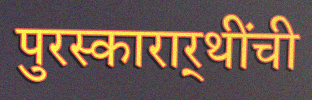
पुरस्कारार्थींची